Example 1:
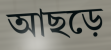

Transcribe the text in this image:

আছড়ে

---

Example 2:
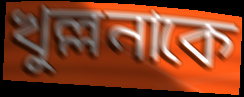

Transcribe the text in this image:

খুল্লনাকে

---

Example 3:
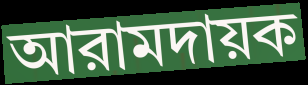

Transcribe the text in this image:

আরামদায়ক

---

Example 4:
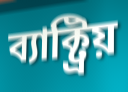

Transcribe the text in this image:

ব্যাক্ট্রিয়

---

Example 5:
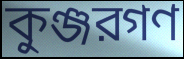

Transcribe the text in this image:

কুঞ্জরগণ